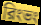
রিংভং